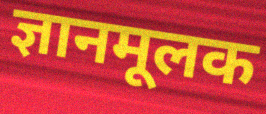
ज्ञानमूलक